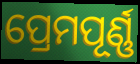
ପ୍ରେମପୂର୍ଣ୍ଣ